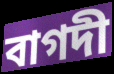
বাগদী